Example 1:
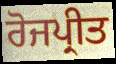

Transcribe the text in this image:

ਰੋਜਪ੍ਰੀਤ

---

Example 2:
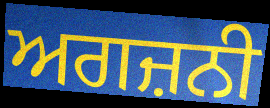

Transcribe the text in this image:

ਅਗਜ਼ਨੀ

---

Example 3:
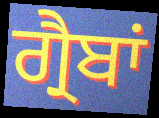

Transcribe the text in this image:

ਗ੍ਰੈਬਾਂ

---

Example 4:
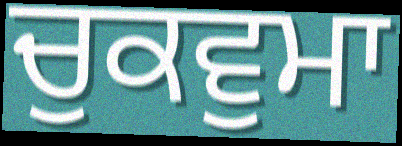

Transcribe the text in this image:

ਚੁਕਵੁਮਾ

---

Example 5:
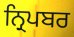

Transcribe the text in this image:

ਨ੍ਰਿਪਬਰ